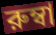
রুম্বা